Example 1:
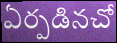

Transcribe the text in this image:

ఏర్పడినచో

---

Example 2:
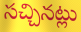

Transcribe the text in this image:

సచ్చినట్లు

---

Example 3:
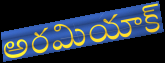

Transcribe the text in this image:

అరమియాక్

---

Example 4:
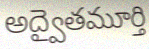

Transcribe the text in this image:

అద్వైతమూర్తి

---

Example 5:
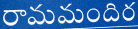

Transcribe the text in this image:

రామమందిర